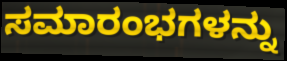
ಸಮಾರಂಭಗಳನ್ನು